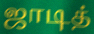
ஜாடித்